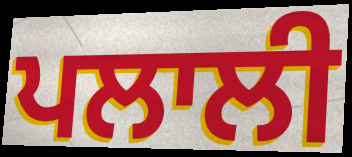
ਪਲਾਲੀ